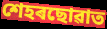
শেহৰছোৱাত